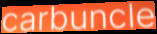
carbuncle